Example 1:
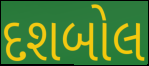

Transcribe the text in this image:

દશબોલ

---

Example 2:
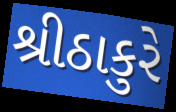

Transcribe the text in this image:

શ્રીઠાકુરે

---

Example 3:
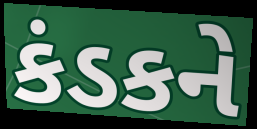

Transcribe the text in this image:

કંડકને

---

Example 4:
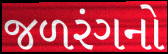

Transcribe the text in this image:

જળરંગનો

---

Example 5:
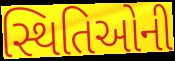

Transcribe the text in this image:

સ્થિતિઓની